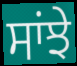
ਸਾਂਝੇ